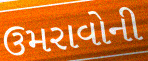
ઉમરાવોની